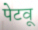
पेटवू